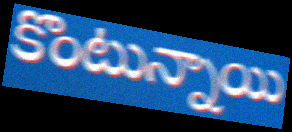
కొంటున్నాయి